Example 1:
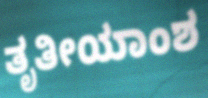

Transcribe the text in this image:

ತೃತೀಯಾಂಶ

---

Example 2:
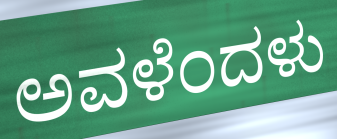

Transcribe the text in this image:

ಅವಳೆಂದಳು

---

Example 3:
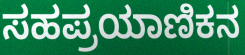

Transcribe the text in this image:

ಸಹಪ್ರಯಾಣಿಕನ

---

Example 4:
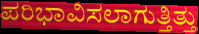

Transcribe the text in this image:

ಪರಿಭಾವಿಸಲಾಗುತ್ತಿತ್ತು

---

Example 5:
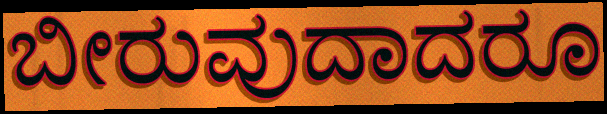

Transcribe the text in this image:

ಬೀರುವುದಾದರೂ